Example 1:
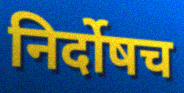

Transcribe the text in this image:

निर्दोषच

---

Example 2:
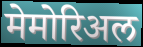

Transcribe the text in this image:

मेमोरिअल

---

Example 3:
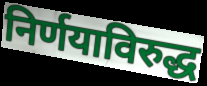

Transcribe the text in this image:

निर्णयाविरुद्ध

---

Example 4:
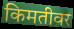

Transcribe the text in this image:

किमतीवर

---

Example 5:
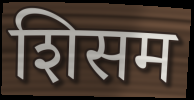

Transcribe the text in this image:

शिसम